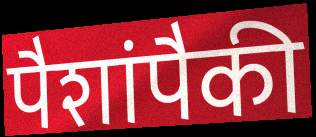
पैशांपैकी